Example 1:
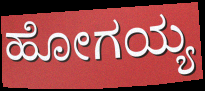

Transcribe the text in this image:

ಹೋಗಯ್ಯ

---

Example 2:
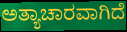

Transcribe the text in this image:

ಅತ್ಯಾಚಾರವಾಗಿದೆ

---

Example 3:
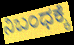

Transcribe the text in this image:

ನಿಬಂಧಕ್ಕೆ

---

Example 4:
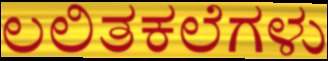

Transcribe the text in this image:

ಲಲಿತಕಲೆಗಳು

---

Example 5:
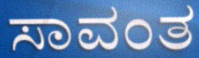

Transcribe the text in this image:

ಸಾವಂತ